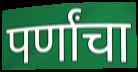
पर्णांचा